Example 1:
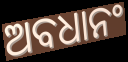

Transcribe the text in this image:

ଅବଧାନଂ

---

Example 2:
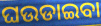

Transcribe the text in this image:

ଘଉଡାଇବା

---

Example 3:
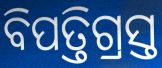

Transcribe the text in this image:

ବିପତ୍ତିଗ୍ରସ୍ତ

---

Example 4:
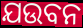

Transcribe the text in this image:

ଯଉବନ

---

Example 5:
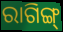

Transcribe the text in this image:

ରାଗିଙ୍ଗ୍